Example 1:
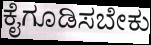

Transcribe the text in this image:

ಕೈಗೂಡಿಸಬೇಕು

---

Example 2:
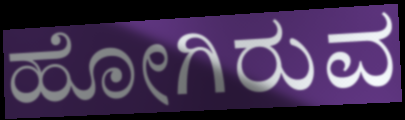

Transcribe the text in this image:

ಹೋಗಿರುವ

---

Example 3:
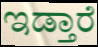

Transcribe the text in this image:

ಇಡ್ತಾರೆ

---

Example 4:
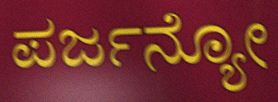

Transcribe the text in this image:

ಪರ್ಜನ್ಯೋ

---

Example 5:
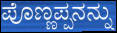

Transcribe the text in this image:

ಪೊಣ್ಣಪ್ಪನನ್ನು